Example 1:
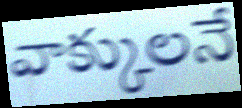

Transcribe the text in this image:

వాక్కులనే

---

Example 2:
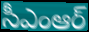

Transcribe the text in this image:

సీఎంఆర్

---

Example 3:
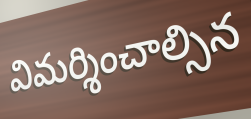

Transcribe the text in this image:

విమర్శించాల్సిన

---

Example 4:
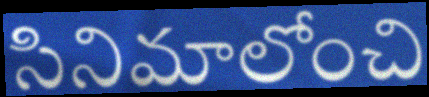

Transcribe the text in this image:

సినిమాలోంచి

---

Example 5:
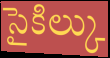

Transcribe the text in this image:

సైకిల్కు